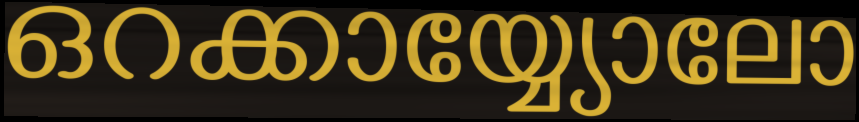
ഒറക്കായ്യ്യോലോ